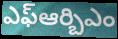
ఎఫ్ఆర్బిఎం